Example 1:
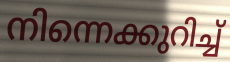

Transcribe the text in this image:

നിന്നെക്കുറിച്ച്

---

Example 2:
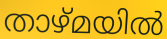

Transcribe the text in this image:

താഴ്മയിൽ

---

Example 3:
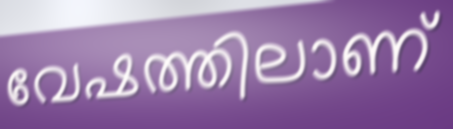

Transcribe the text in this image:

വേഷത്തിലാണ്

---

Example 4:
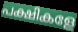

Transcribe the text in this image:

പക്ഷികളേ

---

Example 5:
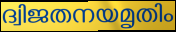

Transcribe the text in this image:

ദ്വിജതനയമൃതിം